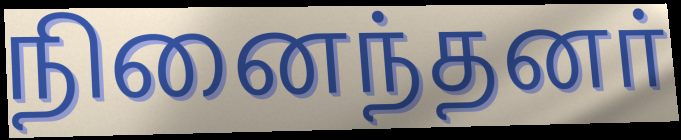
நினைந்தனர்